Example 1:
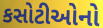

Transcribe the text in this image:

કસોટીઓનો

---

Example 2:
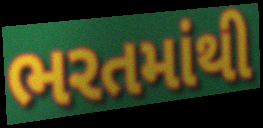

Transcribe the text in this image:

ભરતમાંથી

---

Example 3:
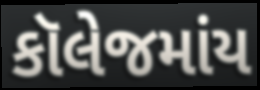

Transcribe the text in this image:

કૉલેજમાંય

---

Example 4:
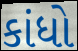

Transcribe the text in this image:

કાંધો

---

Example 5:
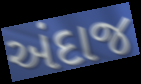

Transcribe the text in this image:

અંદાજ